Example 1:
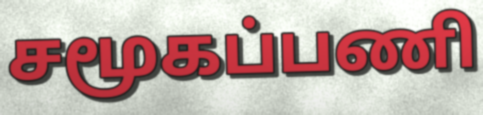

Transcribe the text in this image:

சமூகப்பணி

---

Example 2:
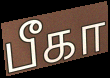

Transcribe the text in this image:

பீகா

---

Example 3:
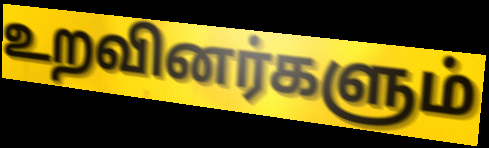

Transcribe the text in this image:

உறவினர்களும்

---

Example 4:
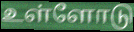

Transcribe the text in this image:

உள்ளோடு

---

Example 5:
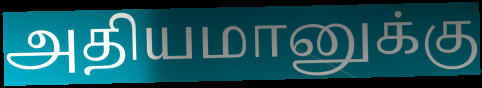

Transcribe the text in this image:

அதியமானுக்கு